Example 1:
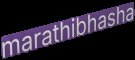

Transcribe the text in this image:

marathibhasha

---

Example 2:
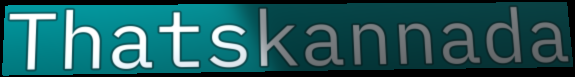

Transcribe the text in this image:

Thatskannada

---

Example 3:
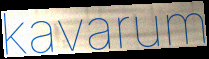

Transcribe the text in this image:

kavarum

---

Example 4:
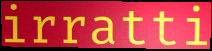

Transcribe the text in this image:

irratti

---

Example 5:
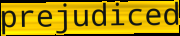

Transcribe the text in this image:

prejudiced